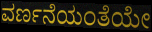
ವರ್ಣನೆಯಂತೆಯೇ